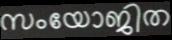
സംയോജിത